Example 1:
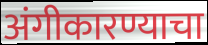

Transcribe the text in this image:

अंगीकारण्याचा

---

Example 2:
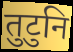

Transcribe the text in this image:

तुटुनि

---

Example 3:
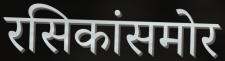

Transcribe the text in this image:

रसिकांसमोर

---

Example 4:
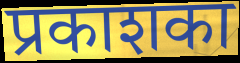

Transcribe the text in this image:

प्रकाशका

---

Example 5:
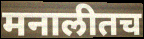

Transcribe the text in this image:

मनालीतच